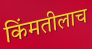
किंमतीलाच